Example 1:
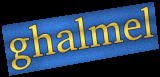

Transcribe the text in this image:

ghalmel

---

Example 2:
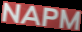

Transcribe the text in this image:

NAPM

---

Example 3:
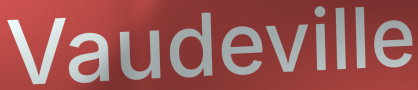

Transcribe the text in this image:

Vaudeville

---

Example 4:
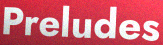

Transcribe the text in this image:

Preludes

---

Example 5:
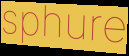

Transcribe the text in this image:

sphure